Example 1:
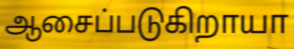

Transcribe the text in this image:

ஆசைப்படுகிறாயா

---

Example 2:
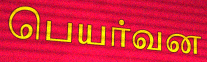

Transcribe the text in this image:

பெயர்வன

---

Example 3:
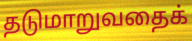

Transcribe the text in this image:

தடுமாறுவதைக்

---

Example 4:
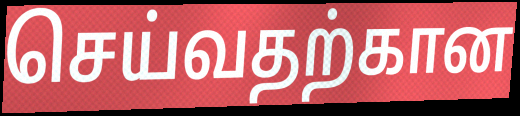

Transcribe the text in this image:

செய்வதற்கான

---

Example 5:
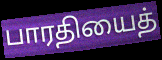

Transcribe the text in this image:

பாரதியைத்